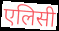
एलिसी